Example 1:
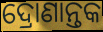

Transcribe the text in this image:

ଦ୍ରୋଣାନ୍ତକ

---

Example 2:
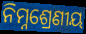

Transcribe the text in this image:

ନିମ୍ନଶ୍ରେଣୀୟ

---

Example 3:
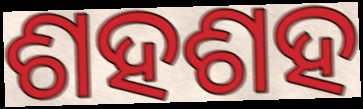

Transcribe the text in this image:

ଶହଶହ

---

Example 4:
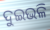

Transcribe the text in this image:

ଦୁଇଭଳି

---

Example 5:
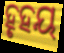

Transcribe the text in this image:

ହୃହୟ